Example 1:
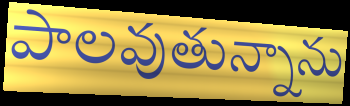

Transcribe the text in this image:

పాలవుతున్నాను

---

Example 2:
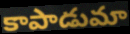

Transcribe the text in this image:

కాపాడుమా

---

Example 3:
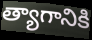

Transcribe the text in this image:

త్యాగానికి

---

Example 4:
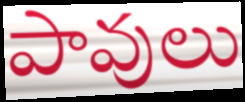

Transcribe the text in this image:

పావులు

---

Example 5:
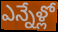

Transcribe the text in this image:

ఎన్నేళ్లో